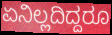
ಏನಿಲ್ಲದಿದ್ದರೂ